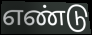
எண்டு